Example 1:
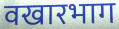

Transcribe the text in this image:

वखारभाग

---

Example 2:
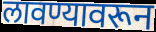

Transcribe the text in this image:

लावण्यावरून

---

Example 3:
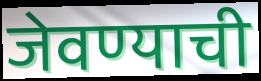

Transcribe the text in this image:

जेवण्याची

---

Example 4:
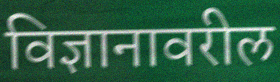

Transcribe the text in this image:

विज्ञानावरील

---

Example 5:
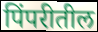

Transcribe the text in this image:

पिंपरीतील